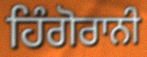
ਹਿੰਗੋਰਾਨੀ